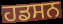
ਹਡਸਨ